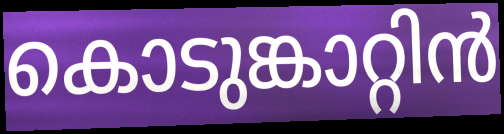
കൊടുങ്കാറ്റിൻ